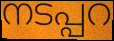
നടപ്പറ